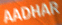
AADHAR